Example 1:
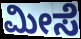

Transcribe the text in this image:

ಮೀಸೆ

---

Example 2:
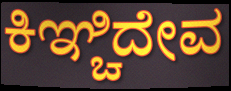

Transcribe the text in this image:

ಕಿಞ್ಚಿದೇವ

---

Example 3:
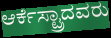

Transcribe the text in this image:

ಆರ್ಕೆಸ್ಟ್ರಾದವರು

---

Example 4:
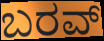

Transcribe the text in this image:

ಬರವ್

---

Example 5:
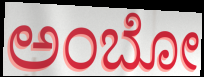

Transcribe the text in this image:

ಅಂಬೋ